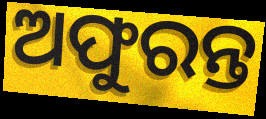
ଅଫୁରନ୍ତ